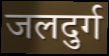
जलदुर्ग